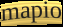
mapio